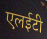
एलईटी